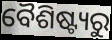
ବୈଶିଷ୍ଟ୍ୟରୁ